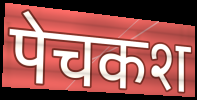
पेचकश